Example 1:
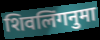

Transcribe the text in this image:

शिवलिंगनुमा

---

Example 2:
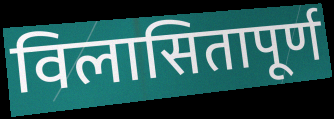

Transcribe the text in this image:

विलासितापूर्ण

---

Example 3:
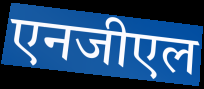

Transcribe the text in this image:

एनजीएल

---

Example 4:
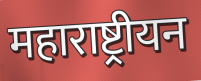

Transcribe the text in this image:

महाराष्ट्रीयन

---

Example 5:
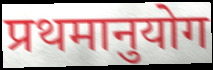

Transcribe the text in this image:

प्रथमानुयोग